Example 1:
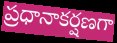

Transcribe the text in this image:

ప్రధానాకర్షణగా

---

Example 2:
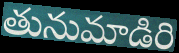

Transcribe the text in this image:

తునుమాడిరి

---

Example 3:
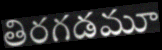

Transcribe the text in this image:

తిరగడమూ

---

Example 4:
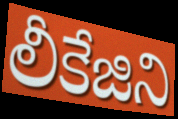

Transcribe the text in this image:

లీకేజిని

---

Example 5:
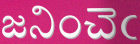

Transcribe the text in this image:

జనించెఁ